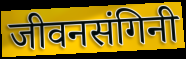
जीवनसंगिनी